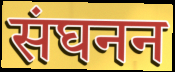
संघनन